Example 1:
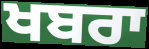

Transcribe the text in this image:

ਖਬਰਾ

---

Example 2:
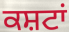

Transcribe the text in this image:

ਕਸ਼ਟਾਂ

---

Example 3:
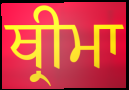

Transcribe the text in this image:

ਥ੍ਰੀਮਾ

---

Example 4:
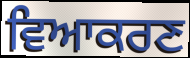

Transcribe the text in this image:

ਵਿਆਕਰਣ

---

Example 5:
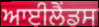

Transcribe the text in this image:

ਆਈਲੈਂਡਸ